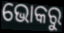
ଭୋକରୁ